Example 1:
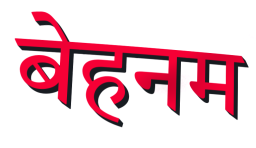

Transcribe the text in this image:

बेहनम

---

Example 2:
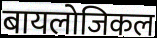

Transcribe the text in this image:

बायलोजिकल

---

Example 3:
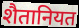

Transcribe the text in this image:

शैतानियत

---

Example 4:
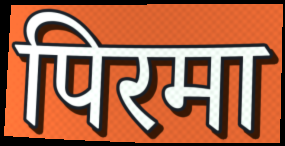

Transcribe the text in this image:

पिरमा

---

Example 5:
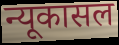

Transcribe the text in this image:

न्यूकासल